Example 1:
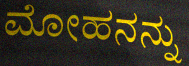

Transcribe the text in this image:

ಮೋಹನನ್ನು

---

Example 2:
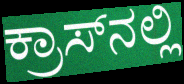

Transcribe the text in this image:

ಕ್ರಾಸ್‌ನಲ್ಲಿ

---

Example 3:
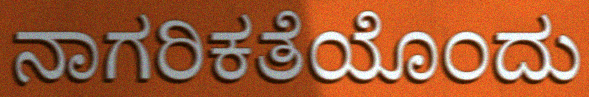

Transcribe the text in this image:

ನಾಗರಿಕತೆಯೊಂದು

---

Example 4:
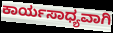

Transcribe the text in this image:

ಕಾರ್ಯಸಾಧ್ಯವಾಗಿ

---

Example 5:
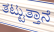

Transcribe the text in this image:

ತಟ್ಟುತ್ತಾನೆ